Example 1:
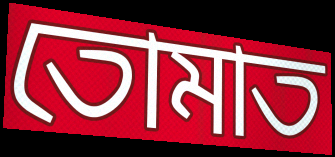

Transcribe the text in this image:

তোমাত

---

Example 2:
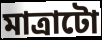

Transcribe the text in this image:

মাত্ৰাটো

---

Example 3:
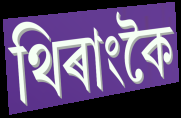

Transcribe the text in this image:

থিৰাংকৈ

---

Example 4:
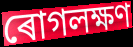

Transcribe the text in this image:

ৰোগলক্ষণ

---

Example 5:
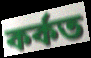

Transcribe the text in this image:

কৰ্কত